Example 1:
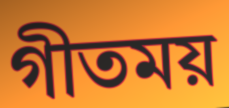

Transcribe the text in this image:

গীতময়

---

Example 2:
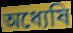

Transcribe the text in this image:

অধ্যেষি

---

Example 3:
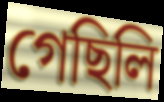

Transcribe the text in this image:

গেছিলি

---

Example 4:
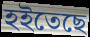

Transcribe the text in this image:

হইতেছে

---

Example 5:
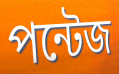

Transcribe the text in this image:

পন্টেজ